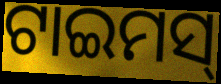
ଟାଇମସ୍